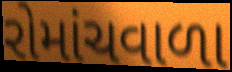
રોમાંચવાળા